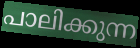
പാലിക്കുന്ന